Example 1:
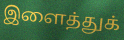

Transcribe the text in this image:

இளைத்துக்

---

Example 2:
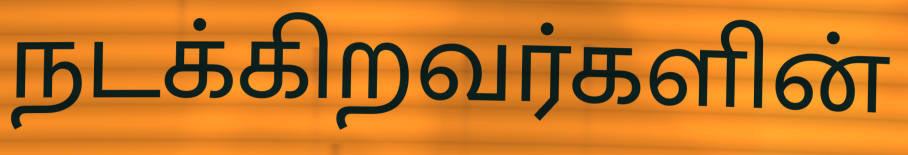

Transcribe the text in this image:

நடக்கிறவர்களின்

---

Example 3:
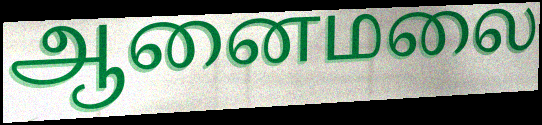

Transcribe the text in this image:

ஆனைமலை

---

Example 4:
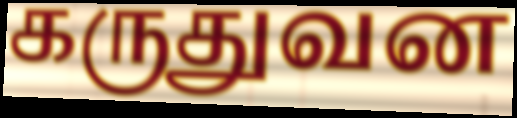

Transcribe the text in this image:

கருதுவன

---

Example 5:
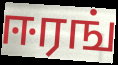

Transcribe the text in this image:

ஈரங்